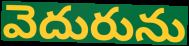
వెదురును